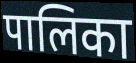
पालिका